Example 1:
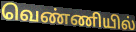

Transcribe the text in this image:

வெண்ணியில்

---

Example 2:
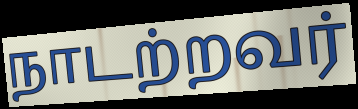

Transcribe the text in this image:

நாடற்றவர்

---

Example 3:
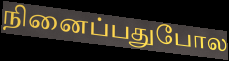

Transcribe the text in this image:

நினைப்பதுபோல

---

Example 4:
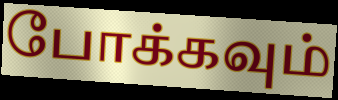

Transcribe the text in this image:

போக்கவும்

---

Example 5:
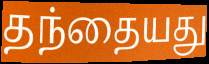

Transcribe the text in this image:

தந்தையது